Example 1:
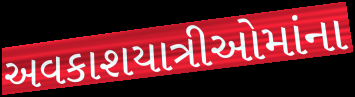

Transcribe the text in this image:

અવકાશયાત્રીઓમાંના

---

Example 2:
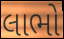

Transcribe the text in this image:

લાભો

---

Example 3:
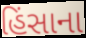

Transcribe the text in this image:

હિંસાના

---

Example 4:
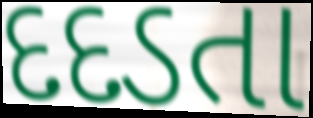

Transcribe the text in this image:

દદડતા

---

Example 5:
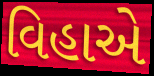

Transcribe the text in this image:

વિહાએ